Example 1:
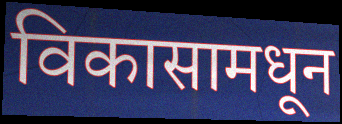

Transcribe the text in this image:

विकासामधून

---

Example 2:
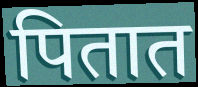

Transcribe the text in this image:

पितात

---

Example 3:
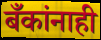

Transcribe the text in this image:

बँकांनाही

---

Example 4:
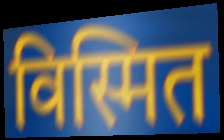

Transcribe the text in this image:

विस्मित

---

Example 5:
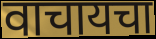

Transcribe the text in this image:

वाचायचा